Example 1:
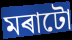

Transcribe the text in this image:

মৰাটো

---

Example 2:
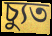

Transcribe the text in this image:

চ্যুত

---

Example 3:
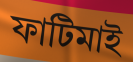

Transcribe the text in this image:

ফাটিমাই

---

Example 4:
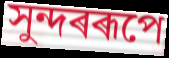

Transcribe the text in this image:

সুন্দৰৰূপে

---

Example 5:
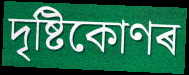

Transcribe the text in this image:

দৃষ্টিকোণৰ